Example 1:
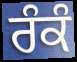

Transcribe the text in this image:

ਰੰਕੰ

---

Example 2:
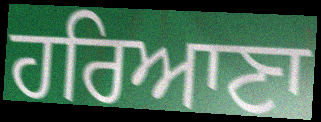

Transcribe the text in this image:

ਹਰਿਆਣਾ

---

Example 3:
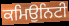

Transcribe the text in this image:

ਕਮਿਉਨਿਟੀ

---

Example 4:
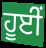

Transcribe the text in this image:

ਹੂਈਂ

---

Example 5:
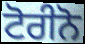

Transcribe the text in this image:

ਟੋਰੀਨੋ